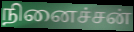
நினைச்சன்